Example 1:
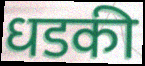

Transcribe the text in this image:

धडकी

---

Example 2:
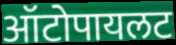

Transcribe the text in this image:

ऑटोपायलट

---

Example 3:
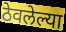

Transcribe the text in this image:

ठेवलेल्या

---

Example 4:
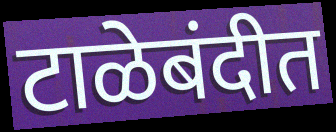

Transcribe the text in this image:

टाळेबंदीत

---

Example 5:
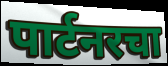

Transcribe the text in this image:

पार्टनरचा